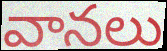
వానలు